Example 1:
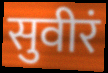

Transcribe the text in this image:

सुवीरं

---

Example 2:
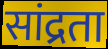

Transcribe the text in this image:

सांद्रता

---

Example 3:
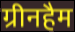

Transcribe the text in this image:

ग्रीनहैम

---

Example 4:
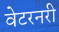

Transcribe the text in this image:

वेटरनरी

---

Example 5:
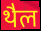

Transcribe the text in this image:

थैल